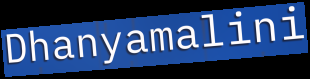
Dhanyamalini